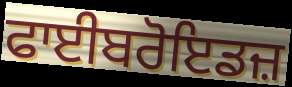
ਫਾਈਬਰੋਇਡਜ਼